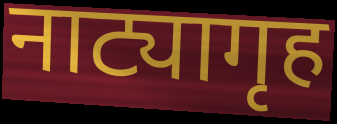
नाट्यागृह